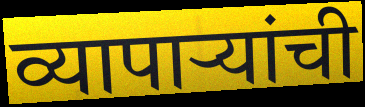
व्यापाऱ्यांची